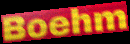
Boehm